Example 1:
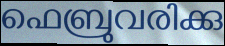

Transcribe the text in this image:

ഫെബ്രുവരിക്കു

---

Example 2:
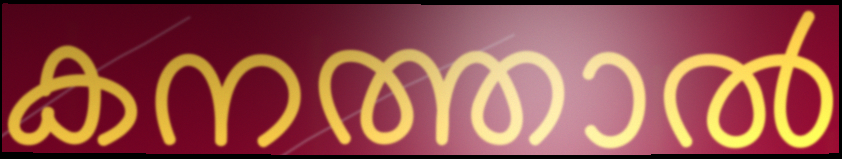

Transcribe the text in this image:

കനത്താൽ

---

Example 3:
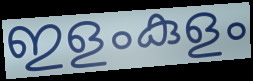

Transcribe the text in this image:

ഇളംകുളം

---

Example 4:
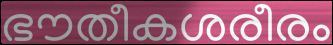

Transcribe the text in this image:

ഭൗതീകശരീരം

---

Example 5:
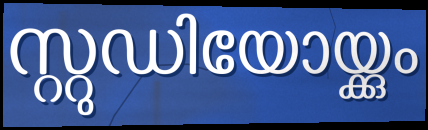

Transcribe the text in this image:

സ്റ്റുഡിയോയ്ക്കും